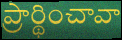
ప్రార్థించావా